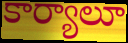
కార్యాలూ